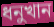
ধনুখান